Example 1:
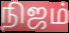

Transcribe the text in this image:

நிஜம்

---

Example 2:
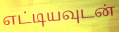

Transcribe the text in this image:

எட்டியவுடன்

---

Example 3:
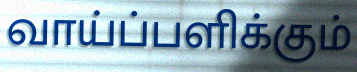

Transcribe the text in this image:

வாய்ப்பளிக்கும்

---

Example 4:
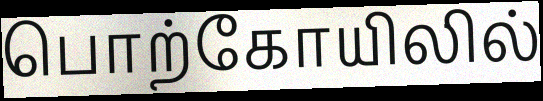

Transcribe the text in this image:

பொற்கோயிலில்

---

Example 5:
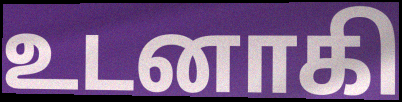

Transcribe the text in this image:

உடனாகி